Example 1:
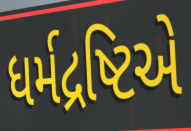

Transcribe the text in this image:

ધર્મદ્રષ્ટિએ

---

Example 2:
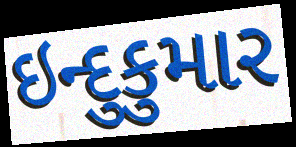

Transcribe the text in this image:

ઇન્દુકુમાર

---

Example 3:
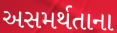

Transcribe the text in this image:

અસમર્થતાના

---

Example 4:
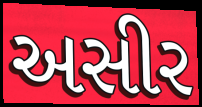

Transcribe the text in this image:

અસીર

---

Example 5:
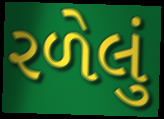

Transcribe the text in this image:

રળેલું